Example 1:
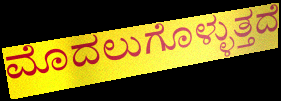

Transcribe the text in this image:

ಮೊದಲುಗೊಳ್ಳುತ್ತದೆ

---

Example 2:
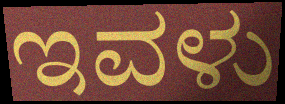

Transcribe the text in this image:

ಇವಳು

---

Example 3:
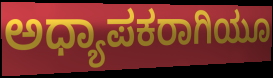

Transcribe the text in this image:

ಅಧ್ಯಾಪಕರಾಗಿಯೂ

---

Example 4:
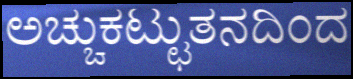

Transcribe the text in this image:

ಅಚ್ಚುಕಟ್ಟುತನದಿಂದ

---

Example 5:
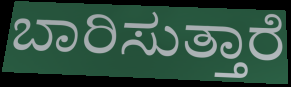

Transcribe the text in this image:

ಬಾರಿಸುತ್ತಾರೆ